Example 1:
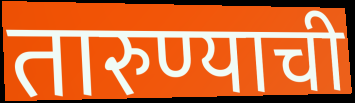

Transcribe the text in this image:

तारुण्याची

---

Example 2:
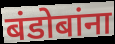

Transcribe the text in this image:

बंडोबांना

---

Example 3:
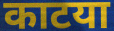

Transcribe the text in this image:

काटया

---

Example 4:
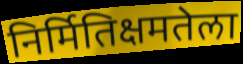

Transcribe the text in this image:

निर्मितिक्षमतेला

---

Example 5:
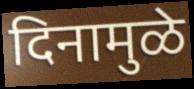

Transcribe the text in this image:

दिनामुळे